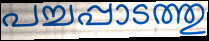
പച്ചപ്പാടത്തു